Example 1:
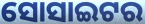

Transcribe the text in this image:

ସୋସାଇଟର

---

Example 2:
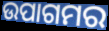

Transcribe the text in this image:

ଉପାଗମର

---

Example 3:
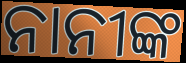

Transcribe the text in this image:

ନାନୀଙ୍କ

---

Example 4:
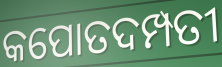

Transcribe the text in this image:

କପୋତଦମ୍ପତୀ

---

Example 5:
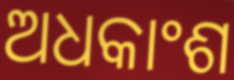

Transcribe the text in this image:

ଅଧକାଂଶ